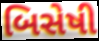
બિસેષી